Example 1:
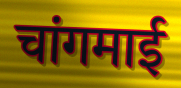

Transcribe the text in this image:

चांगमाई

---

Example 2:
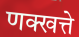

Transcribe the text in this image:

णक्खत्ते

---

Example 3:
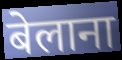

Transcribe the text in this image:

बेलाना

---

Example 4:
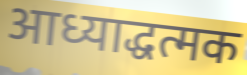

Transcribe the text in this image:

आध्याद्धत्मक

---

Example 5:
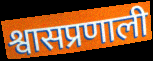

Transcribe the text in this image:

श्वासप्रणाली